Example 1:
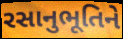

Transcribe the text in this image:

રસાનુભૂતિને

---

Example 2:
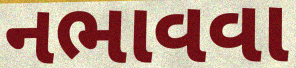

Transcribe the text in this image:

નભાવવા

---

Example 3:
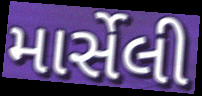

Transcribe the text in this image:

માર્સેલી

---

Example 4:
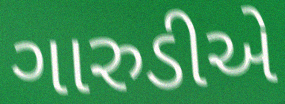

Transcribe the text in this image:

ગારુડીએ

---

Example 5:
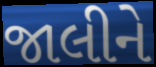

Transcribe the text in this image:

જાલીને